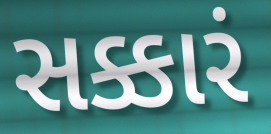
સક્કારં